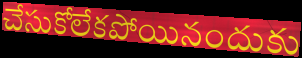
చేసుకోలేకపోయినందుకు